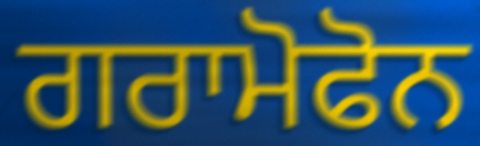
ਗਰਾਮੋਫੋਨ